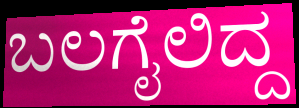
ಬಲಗೈಲಿದ್ದ